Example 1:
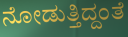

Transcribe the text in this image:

ನೋಡುತ್ತಿದ್ದಂತೆ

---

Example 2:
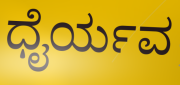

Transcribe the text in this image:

ಧೈರ್ಯವ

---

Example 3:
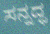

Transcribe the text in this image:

ಸನ್ನದ್ಧ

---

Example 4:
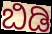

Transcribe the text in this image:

ಬಿಡಿ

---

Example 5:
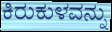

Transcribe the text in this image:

ಕಿರುಕುಳವನ್ನು